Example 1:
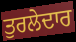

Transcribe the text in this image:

ਤੁਰਲੇਦਾਰ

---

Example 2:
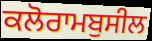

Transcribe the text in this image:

ਕਲੋਰਾਮਬੁਸੀਲ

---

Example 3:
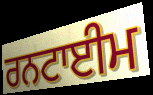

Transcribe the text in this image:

ਰਨਟਾਈਮ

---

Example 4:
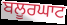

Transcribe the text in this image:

ਬਲੂਰਘਾਟ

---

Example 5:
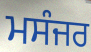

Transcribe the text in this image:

ਮਸੰਜਰ